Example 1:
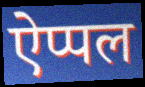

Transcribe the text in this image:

ऐप्पल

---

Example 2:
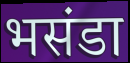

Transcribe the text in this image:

भसंडा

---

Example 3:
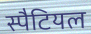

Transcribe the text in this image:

स्पैटियल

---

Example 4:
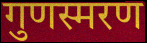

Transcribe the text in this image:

गुणस्मरण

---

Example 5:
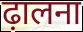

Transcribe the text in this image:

ढ़ालना